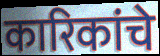
कारिकांचे